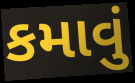
કમાવું